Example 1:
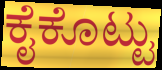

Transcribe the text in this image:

ಕೈಕೊಟ್ಟು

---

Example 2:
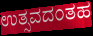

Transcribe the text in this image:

ಉತ್ಸವದಂತಹ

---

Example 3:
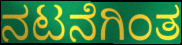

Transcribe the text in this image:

ನಟನೆಗಿಂತ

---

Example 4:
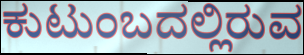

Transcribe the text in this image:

ಕುಟುಂಬದಲ್ಲಿರುವ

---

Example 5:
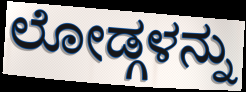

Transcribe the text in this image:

ಲೋಡ್ಗಳನ್ನು